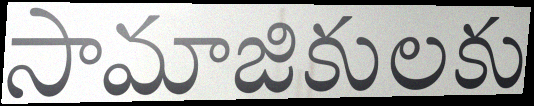
సామాజికులకు